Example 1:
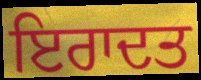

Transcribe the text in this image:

ਇਰਾਦਤ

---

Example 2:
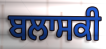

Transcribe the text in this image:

ਬਲਾਸਕੀ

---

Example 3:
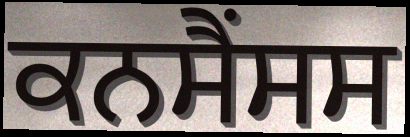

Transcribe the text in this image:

ਕਨਸੈਂਸਸ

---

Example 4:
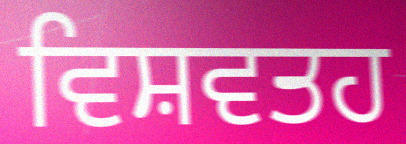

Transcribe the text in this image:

ਵਿਸ਼ਵਤਹ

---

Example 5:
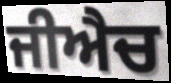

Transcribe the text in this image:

ਜੀਐਚ